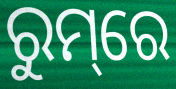
ରୁମ୍‌ରେ